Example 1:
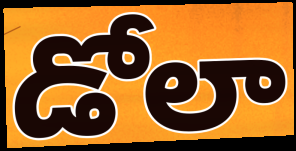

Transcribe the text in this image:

డోలా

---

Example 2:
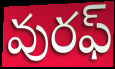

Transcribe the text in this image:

వురఫ్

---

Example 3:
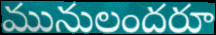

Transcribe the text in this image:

మునులందరూ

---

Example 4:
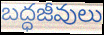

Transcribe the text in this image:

బద్ధజీవులు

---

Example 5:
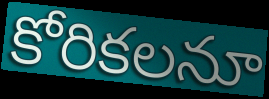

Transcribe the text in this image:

కోరికలనూ